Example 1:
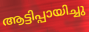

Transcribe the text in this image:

ആട്ടിപ്പായിച്ചു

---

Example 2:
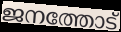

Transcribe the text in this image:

ജനത്തോട്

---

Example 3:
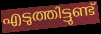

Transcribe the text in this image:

എടുത്തിട്ടുണ്ട്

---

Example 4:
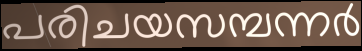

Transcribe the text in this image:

പരിചയസമ്പന്നർ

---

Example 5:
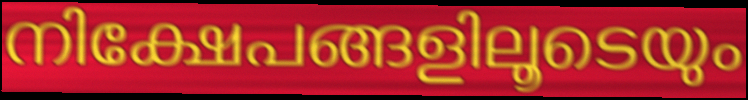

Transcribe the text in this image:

നിക്ഷേപങ്ങളിലൂടെയും